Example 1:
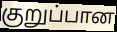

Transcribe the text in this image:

குறுப்பான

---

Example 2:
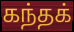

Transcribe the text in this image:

கந்தக்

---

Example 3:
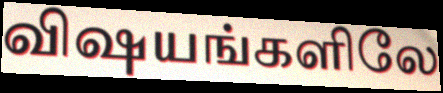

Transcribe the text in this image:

விஷயங்களிலே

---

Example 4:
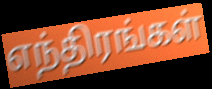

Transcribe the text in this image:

எந்திரங்கள்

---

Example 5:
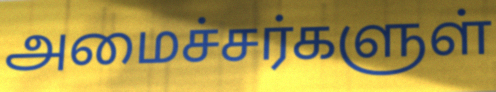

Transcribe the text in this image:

அமைச்சர்களுள்